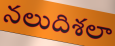
నలుదిశలా